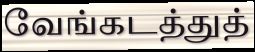
வேங்கடத்துத்